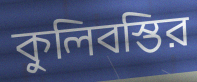
কুলিবস্তির